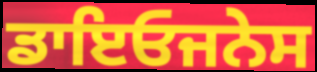
ਡਾਇਓਜਨੇਸ